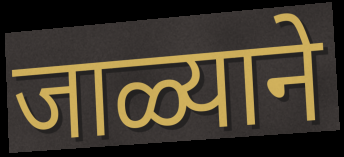
जाळ्याने